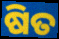
ଷିତ